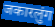
जकारलुंग